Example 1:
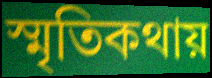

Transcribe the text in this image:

স্মৃতিকথায়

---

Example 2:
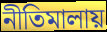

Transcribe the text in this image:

নীতিমালায়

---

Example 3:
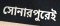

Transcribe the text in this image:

সোনারপুরেই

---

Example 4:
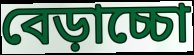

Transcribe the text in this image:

বেড়াচ্চো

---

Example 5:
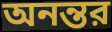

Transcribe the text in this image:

অনন্তর